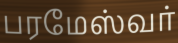
பரமேஸ்வர்